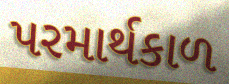
પરમાર્થકાળ